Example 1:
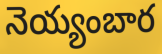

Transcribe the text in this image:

నెయ్యంబార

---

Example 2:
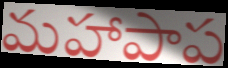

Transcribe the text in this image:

మహాపాప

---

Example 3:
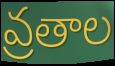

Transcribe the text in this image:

వ్రతాల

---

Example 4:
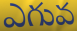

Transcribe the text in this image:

ఎగువ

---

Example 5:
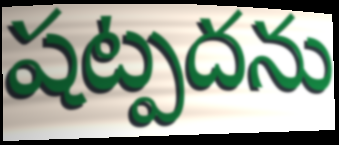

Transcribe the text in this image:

షట్పదను